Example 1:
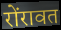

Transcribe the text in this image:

रोंरावत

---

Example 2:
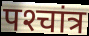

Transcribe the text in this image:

पश्चांत्र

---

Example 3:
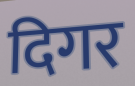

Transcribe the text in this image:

दिगर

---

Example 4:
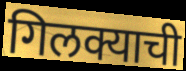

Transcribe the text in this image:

गिलक्याची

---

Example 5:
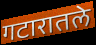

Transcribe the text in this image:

गटारातले